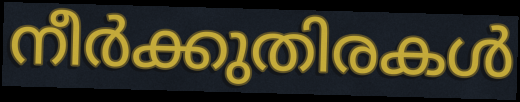
നീർക്കുതിരകൾ